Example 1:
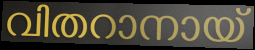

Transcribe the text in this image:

വിതറാനായ്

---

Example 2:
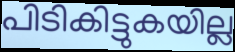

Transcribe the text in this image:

പിടികിട്ടുകയില്ല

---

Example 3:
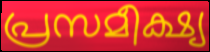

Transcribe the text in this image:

പ്രസമീക്ഷ്യ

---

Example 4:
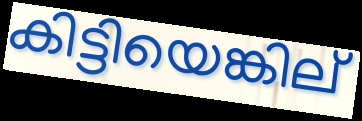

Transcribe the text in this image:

കിട്ടിയെങ്കില്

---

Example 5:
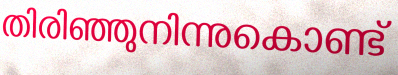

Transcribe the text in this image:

തിരിഞ്ഞുനിന്നുകൊണ്ട്